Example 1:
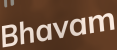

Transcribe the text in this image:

Bhavam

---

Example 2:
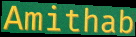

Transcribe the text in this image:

Amithab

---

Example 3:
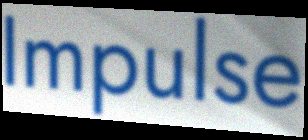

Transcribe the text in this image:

Impulse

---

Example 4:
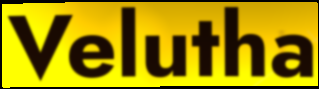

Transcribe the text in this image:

Velutha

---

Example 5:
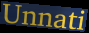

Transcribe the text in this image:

Unnati